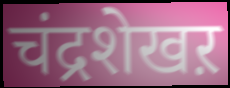
चंद्रशेखऱ